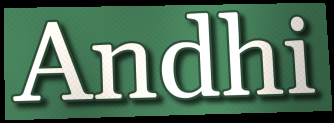
Andhi